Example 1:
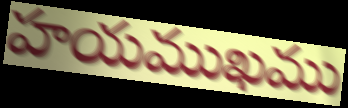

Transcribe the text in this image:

హయముఖము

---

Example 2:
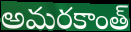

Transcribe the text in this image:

అమరకాంత్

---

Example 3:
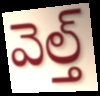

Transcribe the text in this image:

వెల్త్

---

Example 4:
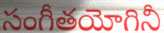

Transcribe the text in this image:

సంగీతయోగినీ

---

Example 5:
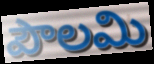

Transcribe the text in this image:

పౌలమి